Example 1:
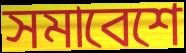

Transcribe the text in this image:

সমাবেশে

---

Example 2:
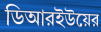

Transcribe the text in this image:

ডিআরইউয়ের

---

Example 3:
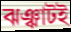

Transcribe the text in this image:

ঝঞ্ঝাটই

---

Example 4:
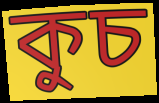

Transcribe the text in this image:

কুচ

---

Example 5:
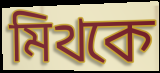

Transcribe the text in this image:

মিথকে